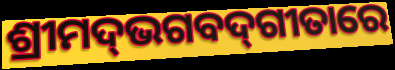
ଶ୍ରୀମଦ୍‌ଭଗବଦ୍‌ଗୀତାରେ